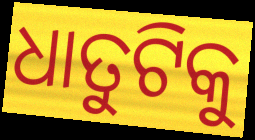
ଧାତୁଟିକୁ